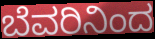
ಬೆವರಿನಿಂದ